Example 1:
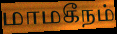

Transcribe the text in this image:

மாமகீநம்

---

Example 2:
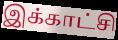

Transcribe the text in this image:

இக்காட்சி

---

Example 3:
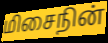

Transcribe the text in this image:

மிசைநின்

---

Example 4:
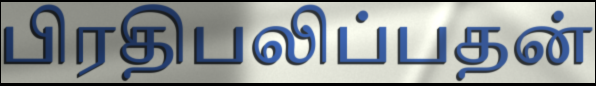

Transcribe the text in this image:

பிரதிபலிப்பதன்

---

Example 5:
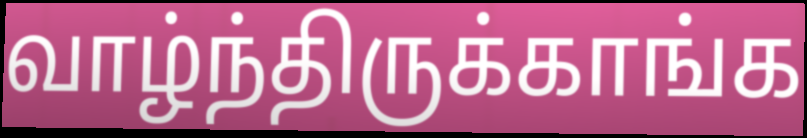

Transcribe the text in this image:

வாழ்ந்திருக்காங்க